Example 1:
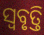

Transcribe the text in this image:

ସ୍ୱବୃତ୍ତି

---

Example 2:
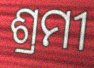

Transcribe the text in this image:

ଶ୍ରମୀ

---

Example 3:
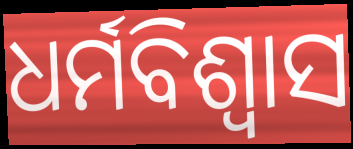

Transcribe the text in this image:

ଧର୍ମବିଶ୍ୱାସ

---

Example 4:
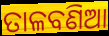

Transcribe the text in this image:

ତାଳବଣିଆ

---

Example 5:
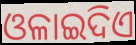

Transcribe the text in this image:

ଓଳାଇଦିଏ